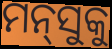
ମନ୍‌ସୁକୁ